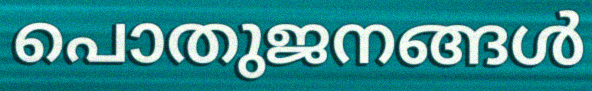
പൊതുജനങ്ങൾ